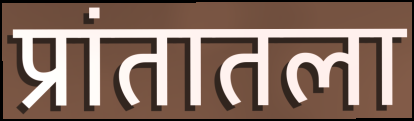
प्रांतातला